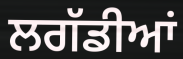
ਲਗੱਡੀਆਂ